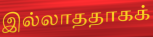
இல்லாததாகக்